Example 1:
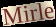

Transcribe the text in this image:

Mirle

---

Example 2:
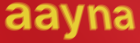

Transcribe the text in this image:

aayna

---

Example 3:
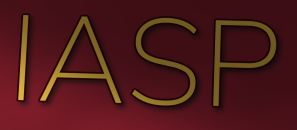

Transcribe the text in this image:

IASP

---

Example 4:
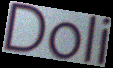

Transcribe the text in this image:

Doli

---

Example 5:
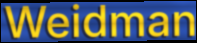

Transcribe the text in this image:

Weidman